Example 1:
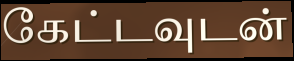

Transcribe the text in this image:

கேட்டவுடன்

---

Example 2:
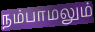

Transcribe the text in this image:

நம்பாமலும்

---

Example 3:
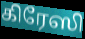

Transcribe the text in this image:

கிரேஸி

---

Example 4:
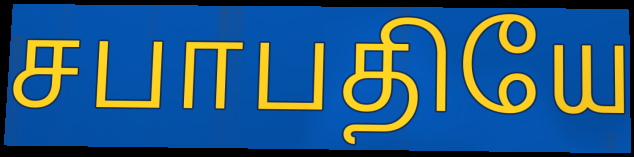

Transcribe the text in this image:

சபாபதியே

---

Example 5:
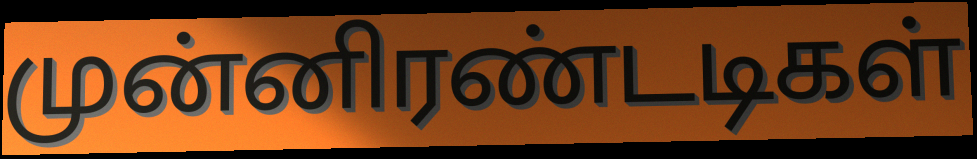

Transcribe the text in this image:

முன்னிரண்டடிகள்